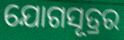
ଯୋଗସୂତ୍ରର